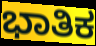
ಭಾತಿಕ